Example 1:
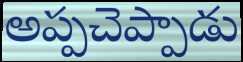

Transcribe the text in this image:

అప్పచెప్పాడు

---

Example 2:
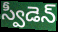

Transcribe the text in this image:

స్వీడెన్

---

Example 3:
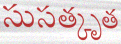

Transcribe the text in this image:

సుసత్కృత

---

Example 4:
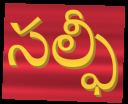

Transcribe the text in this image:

సల్ఫీ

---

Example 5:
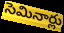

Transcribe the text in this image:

సెమినార్లు